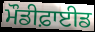
ਮੌਡੀਫ਼ਾਈਡ